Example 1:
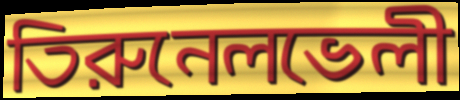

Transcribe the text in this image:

তিৰুনেলভেলী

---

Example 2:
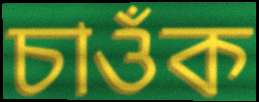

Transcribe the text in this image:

চাওঁক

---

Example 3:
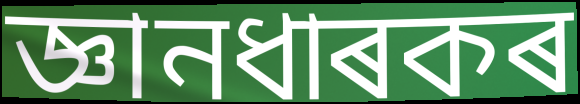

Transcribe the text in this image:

জ্ঞানধাৰকৰ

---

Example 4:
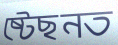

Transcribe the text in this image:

ষ্টেছনত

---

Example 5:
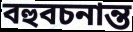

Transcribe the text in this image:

বহুবচনান্ত